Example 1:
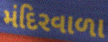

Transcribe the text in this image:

મંદિરવાળા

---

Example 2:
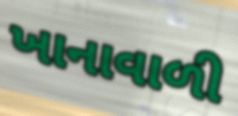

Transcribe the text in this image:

ખાનાવાળી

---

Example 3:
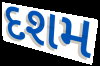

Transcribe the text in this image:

દશમ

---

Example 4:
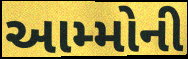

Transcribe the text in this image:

આમ્મોની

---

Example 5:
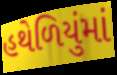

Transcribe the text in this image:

હથેળિયુંમાં